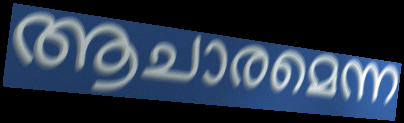
ആചാരമെന്ന